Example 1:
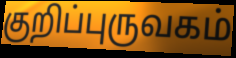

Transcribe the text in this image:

குறிப்புருவகம்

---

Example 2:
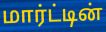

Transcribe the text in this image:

மார்ட்டின்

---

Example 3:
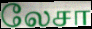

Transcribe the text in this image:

லேசா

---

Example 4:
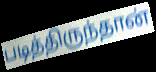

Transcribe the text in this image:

படித்திருந்தான்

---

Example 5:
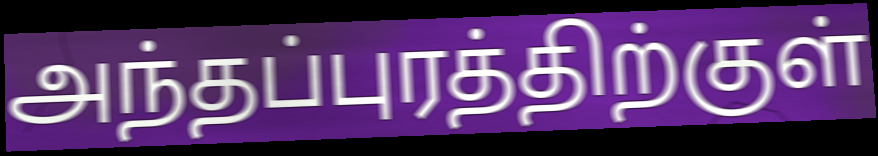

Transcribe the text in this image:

அந்தப்புரத்திற்குள்